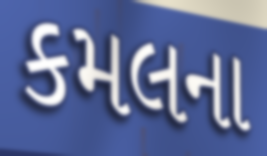
કમલના